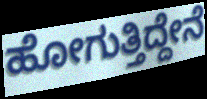
ಹೋಗುತ್ತಿದ್ದೇನೆ